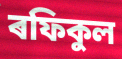
ৰফিকুল